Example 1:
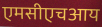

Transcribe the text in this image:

एमसीएचआय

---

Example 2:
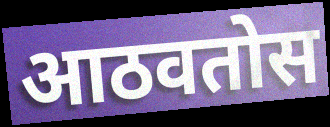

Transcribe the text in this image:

आठवतोस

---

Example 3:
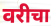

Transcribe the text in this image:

वरीचा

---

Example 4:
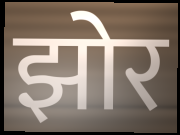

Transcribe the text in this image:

झोर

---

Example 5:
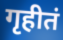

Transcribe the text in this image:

गृहीतं